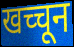
खच्चून